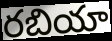
రబియా